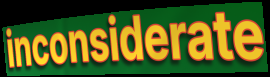
inconsiderate